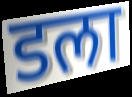
डला